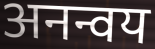
अनन्वय